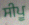
ਸੀਪੂ